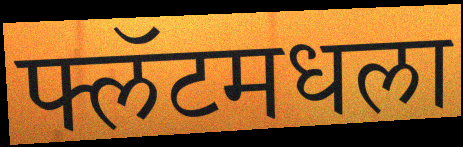
फ्लॅटमधला